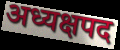
अध्यक्षपद